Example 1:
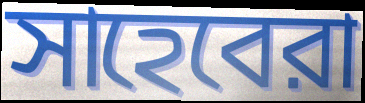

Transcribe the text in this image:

সাহেবেরা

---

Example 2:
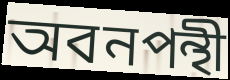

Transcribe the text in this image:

অবনপন্থী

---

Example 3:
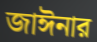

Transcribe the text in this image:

জাঈনার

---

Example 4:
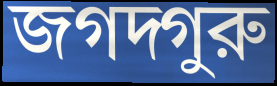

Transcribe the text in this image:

জগদ্গুরু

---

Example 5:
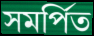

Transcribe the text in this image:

সমর্পিত